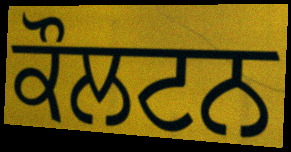
ਕੌਲਟਨ